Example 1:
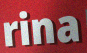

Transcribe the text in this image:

rina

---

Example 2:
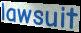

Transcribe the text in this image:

lawsuit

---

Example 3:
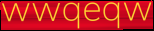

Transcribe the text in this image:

wwqeqw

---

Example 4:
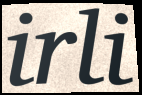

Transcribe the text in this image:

irli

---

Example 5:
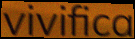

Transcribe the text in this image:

vivifica